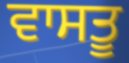
ਵਾਸਤੂ